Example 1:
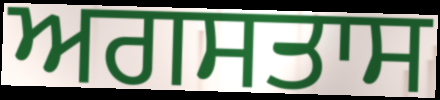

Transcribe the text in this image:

ਅਗਸਤਾਸ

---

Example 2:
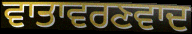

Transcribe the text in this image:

ਵਾਤਾਵਰਣਵਾਦ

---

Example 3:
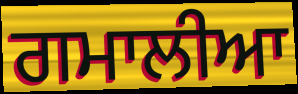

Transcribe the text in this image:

ਗਮਾਲੀਆ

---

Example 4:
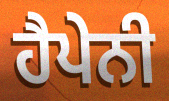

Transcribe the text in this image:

ਹੈਪੇਨੀ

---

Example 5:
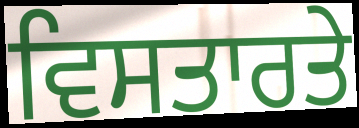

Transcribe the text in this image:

ਵਿਸਤਾਰਤੇ